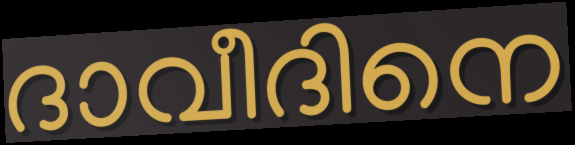
ദാവീദിനെ